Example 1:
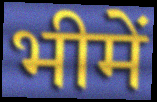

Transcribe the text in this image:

भीमें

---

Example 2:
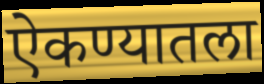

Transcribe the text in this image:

ऐकण्यातला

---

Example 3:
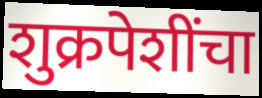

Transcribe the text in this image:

शुक्रपेशींचा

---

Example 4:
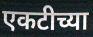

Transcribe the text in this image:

एकटीच्या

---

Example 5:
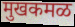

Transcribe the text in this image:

मुखकमळ